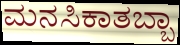
ಮನಸಿಕಾತಬ್ಬಾ